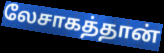
லேசாகத்தான்